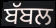
ਬੱਬਲ